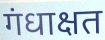
गंधाक्षत